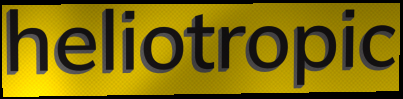
heliotropic